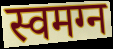
स्वमग्न